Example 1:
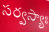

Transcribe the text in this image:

సర్వస్యాః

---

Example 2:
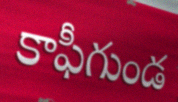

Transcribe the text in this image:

కాఫీగుండ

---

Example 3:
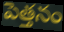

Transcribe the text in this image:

పెత్తనం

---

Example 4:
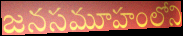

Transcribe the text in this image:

జనసమూహంలోని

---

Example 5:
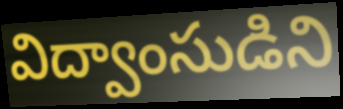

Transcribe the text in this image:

విద్వాంసుడిని